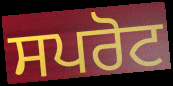
ਸਪਰੋਟ